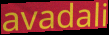
avadali